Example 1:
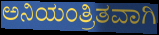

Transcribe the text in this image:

ಅನಿಯಂತ್ರಿತವಾಗಿ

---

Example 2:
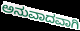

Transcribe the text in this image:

ಅನುವಾದವಾಗಿ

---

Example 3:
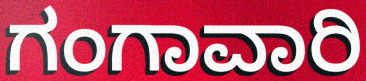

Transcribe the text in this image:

ಗಂಗಾವಾರಿ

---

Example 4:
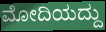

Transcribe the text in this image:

ಮೋದಿಯದ್ದು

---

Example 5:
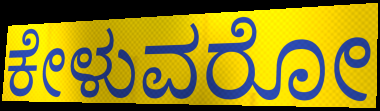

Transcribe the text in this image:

ಕೇಳುವರೋ